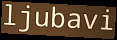
ljubavi